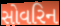
સોવરિન